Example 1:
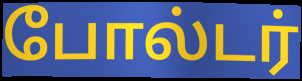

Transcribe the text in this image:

போல்டர்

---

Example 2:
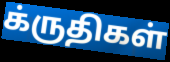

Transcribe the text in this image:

க்ருதிகள்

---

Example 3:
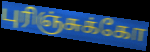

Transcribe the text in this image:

புரிஞ்சுக்கோ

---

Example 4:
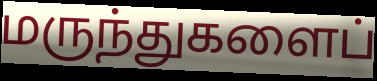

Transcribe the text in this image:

மருந்துகளைப்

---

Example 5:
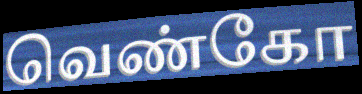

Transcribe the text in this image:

வெண்கோ